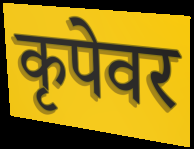
कृपेवर